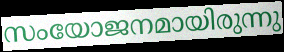
സംയോജനമായിരുന്നു